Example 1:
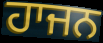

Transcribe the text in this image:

ਹਾਜਨ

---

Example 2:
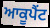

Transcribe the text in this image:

ਆਕੂਪੈਂਟ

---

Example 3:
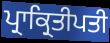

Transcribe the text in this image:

ਪ੍ਰਾਕ੍ਰਿਤੀਪਤੀ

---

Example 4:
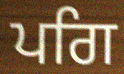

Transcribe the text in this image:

ਪਗਿ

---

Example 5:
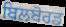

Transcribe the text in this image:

ਬਿਲਬੋਰਡ